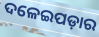
ଦଳେଇପଡ଼ାର